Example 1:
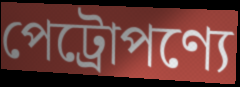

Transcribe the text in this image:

পেট্রোপণ্যে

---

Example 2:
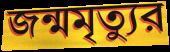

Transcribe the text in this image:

জন্মমৃত্যুর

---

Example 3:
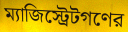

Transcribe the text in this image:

ম্যাজিস্ট্রেটগণের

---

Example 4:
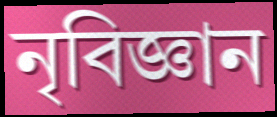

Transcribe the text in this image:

নৃবিজ্ঞান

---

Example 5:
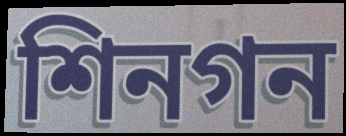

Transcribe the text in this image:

শিনগন